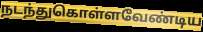
நடந்துகொள்ளவேண்டிய